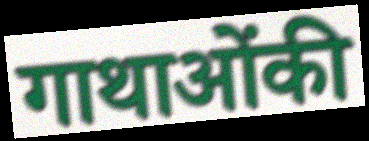
गाथाओंकी